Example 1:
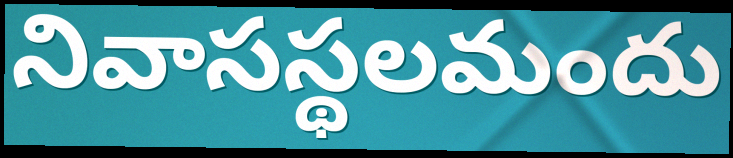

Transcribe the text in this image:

నివాసస్థలమందు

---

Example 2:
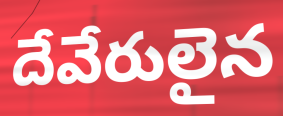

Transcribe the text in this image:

దేవేరులైన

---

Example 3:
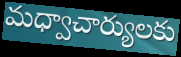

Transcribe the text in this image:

మధ్వాచార్యులకు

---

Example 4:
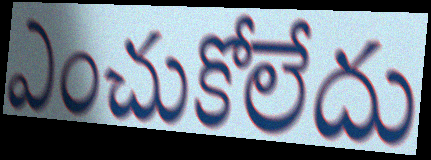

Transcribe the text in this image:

ఎంచుకోలేదు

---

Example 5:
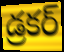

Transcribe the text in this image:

డ్రకర్